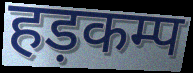
हड़कम्प